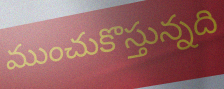
ముంచుకొస్తున్నది